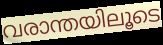
വരാന്തയിലൂടെ